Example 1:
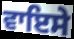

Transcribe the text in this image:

ਵਾਇਸੇ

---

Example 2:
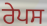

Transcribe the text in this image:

ਰੇਪਸ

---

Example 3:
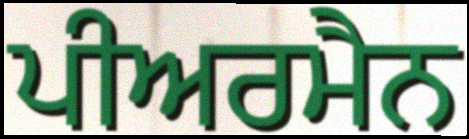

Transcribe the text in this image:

ਪੀਅਰਮੈਨ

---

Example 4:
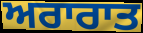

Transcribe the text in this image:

ਅਰਾਰਾਤ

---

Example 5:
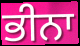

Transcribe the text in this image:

ਭੀਨਾ